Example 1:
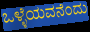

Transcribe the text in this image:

ಒಳ್ಳೆಯವನೆಂದು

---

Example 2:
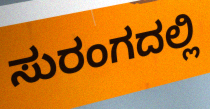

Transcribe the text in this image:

ಸುರಂಗದಲ್ಲಿ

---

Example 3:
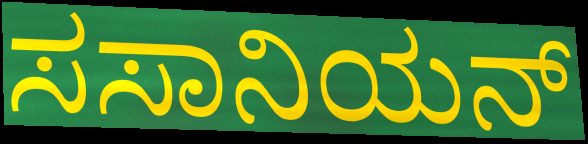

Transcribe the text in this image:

ಸಸಾನಿಯನ್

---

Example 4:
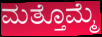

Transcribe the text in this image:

ಮತ್ತೊಮ್ಮೆ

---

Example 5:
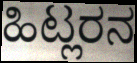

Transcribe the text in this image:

ಹಿಟ್ಲರನ